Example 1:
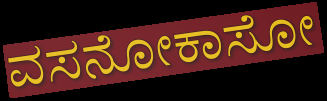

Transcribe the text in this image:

ವಸನೋಕಾಸೋ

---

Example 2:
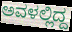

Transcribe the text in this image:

ಅವಳಲ್ಲಿದ್ದ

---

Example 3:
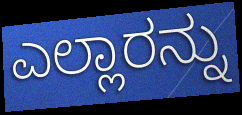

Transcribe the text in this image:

ಎಲ್ಲಾರನ್ನು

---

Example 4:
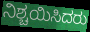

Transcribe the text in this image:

ನಿಶ್ಚಯಿಸಿದರು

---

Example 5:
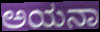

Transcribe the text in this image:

ಅಯನಾ